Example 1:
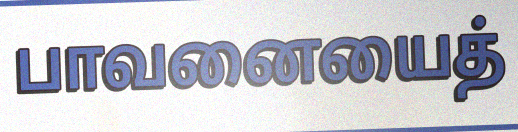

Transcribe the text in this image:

பாவனையைத்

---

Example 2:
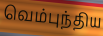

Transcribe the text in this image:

வெம்புந்திய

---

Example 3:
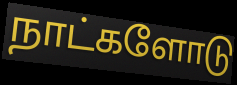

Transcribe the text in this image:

நாட்களோடு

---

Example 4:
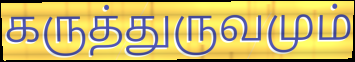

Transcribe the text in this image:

கருத்துருவமும்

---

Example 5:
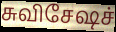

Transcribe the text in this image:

சுவிசேஷச்